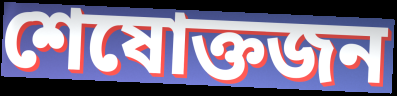
শেষোক্তজন